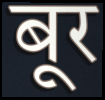
बूर